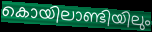
കൊയിലാണ്ടിയിലും